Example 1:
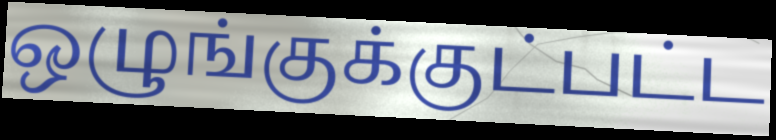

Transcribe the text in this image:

ஒழுங்குக்குட்பட்ட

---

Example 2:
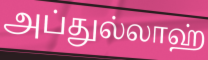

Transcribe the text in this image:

அப்துல்லாஹ்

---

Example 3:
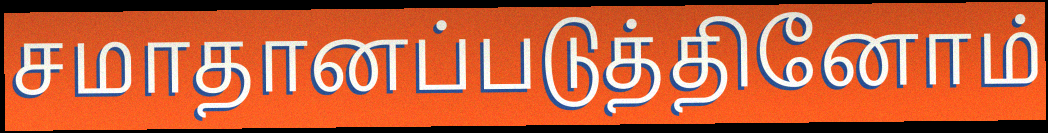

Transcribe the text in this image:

சமாதானப்படுத்தினோம்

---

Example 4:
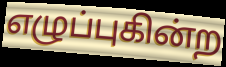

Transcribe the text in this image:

எழுப்புகின்ற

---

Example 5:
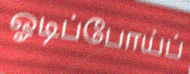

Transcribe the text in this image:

ஓடிப்போய்ப்